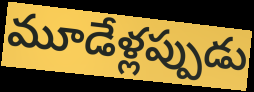
మూడేళ్లప్పుడు